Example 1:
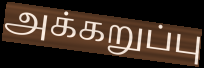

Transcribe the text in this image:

அக்கறுப்பு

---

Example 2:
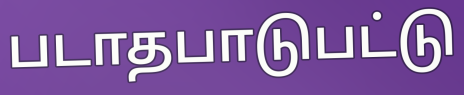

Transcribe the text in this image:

படாதபாடுபட்டு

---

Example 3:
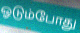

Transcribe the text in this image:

ஓடும்போது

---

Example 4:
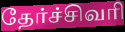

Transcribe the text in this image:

தேர்ச்சிவரி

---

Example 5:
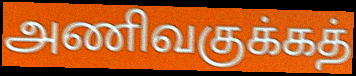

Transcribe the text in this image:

அணிவகுக்கத்